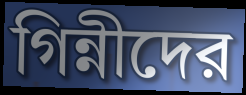
গিন্নীদের